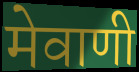
मेवाणी